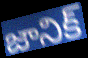
జానిక్